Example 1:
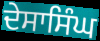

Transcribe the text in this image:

ਦੇਸਾਸਿੰਘ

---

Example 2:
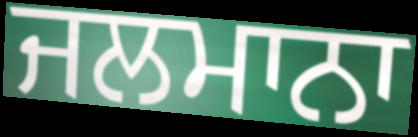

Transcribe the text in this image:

ਜਲਮਾਨਾ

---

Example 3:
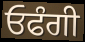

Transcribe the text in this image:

ਓਫੰਗੀ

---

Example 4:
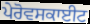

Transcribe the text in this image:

ਪੇਰੋਵਸਕਾਈਟ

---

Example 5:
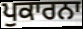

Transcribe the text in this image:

ਪੁਕਾਰਨਾ